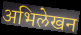
अभिलेखन